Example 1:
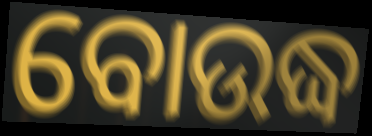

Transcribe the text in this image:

ବୋଉଦ୍ଧ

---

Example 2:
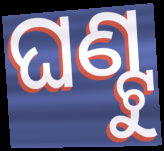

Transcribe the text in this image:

ଘଣ୍ଟୁ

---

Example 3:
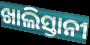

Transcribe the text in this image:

ଖାଲିସ୍ତାନୀ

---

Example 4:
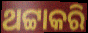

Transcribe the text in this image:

ଥଟ୍ଟାକରି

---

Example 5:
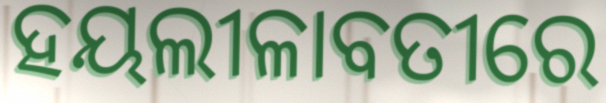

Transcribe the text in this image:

ହୟଲୀଳାବତୀରେ